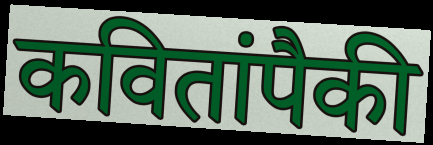
कवितांपैकी